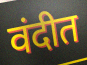
वंदीत